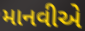
માનવીએ